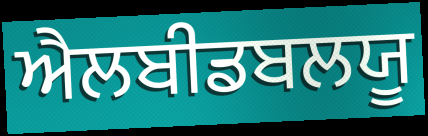
ਐਲਬੀਡਬਲਯੂ